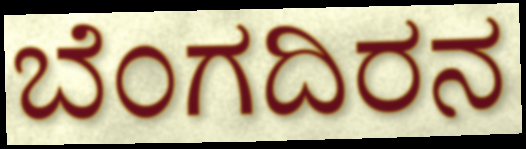
ಬೆಂಗದಿರನ